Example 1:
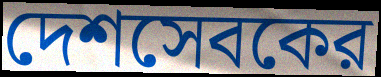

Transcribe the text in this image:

দেশসেবকের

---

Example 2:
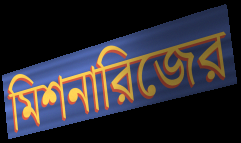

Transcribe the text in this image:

মিশনারিজের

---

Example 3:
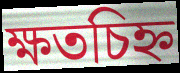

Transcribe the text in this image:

ক্ষতচিহ্ন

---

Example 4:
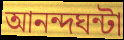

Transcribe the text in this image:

আনন্দঘন্টা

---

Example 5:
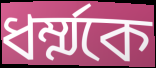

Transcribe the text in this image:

ধর্ম্মকে